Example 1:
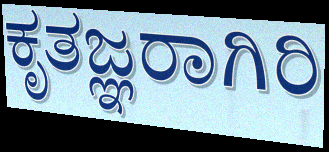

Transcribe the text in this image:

ಕೃತಜ್ಞರಾಗಿರಿ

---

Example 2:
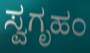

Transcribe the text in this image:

ಸ್ವಗೃಹಂ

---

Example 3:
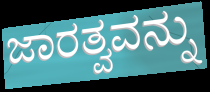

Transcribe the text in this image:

ಜಾರತ್ವವನ್ನು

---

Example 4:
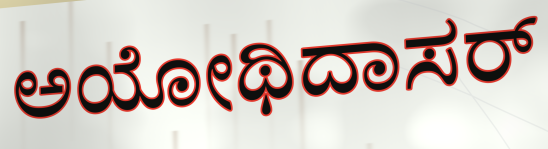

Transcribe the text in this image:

ಅಯೋಥಿದಾಸರ್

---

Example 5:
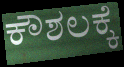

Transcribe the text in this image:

ಕೌಶಲಕ್ಕೆ